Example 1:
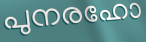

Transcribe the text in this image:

പുനരഹോ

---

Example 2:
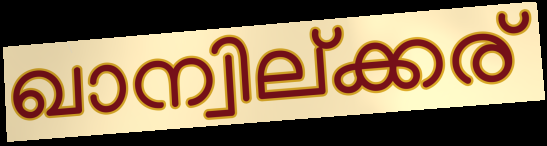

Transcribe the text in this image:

ഖാന്വില്ക്കര്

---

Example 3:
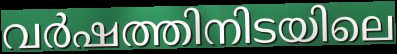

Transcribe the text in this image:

വർഷത്തിനിടയിലെ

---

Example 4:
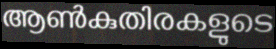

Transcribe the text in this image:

ആൺകുതിരകളുടെ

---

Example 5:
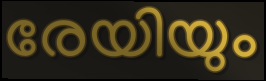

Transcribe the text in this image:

രേയിയും